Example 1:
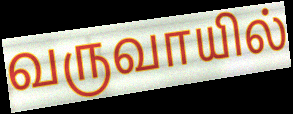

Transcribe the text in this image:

வருவாயில்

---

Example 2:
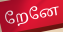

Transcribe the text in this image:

றேனே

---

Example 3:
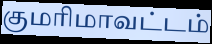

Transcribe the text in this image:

குமரிமாவட்டம்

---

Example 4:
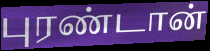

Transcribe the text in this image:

புரண்டான்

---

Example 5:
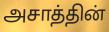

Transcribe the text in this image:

அசாத்தின்